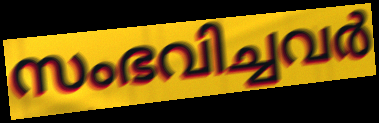
സംഭവിച്ചവർ